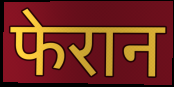
फेरान